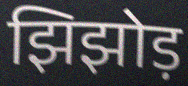
झिझोड़